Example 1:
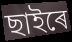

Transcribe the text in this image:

ছাইৰে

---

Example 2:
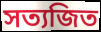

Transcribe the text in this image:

সত্যজিত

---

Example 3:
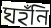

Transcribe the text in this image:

ঘহঁনি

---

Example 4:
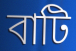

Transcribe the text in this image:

বাটি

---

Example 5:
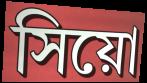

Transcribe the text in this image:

সিয়ো